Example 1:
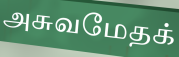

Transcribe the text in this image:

அசுவமேதக்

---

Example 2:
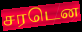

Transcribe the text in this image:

சரடென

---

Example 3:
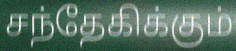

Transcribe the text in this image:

சந்தேகிக்கும்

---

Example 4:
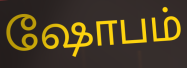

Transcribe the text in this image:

ஷோபம்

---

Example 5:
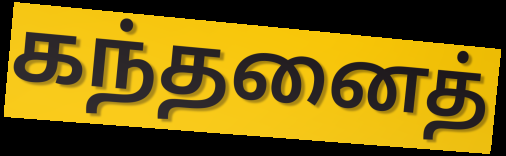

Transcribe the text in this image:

கந்தனைத்